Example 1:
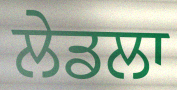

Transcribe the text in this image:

ਲੇਡਲਾ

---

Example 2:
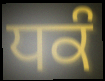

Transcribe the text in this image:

ਧਕੰ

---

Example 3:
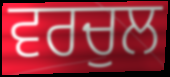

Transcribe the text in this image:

ਵਰਚੁਲ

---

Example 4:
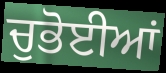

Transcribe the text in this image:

ਚੁਭੋਈਆਂ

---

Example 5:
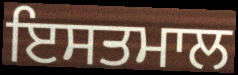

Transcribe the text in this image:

ਇਸਤਮਾਲ